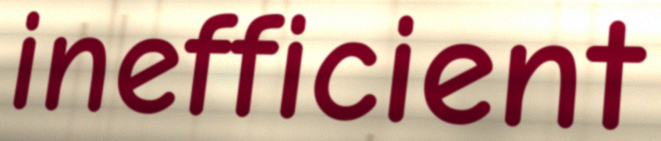
inefficient